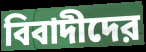
বিবাদীদের